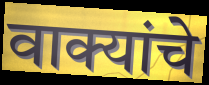
वाक्यांचे